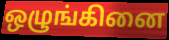
ஒழுங்கினை